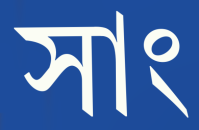
সাং